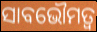
ସାବଭୌମତ୍ୱ